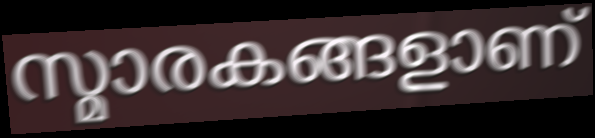
സ്മാരകങ്ങളാണ്